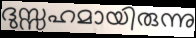
ദുസ്സഹമായിരുന്നു